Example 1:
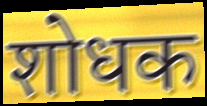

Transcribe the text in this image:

शोधक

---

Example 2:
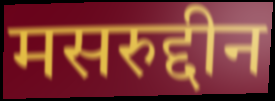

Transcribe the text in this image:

मसरुद्दीन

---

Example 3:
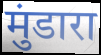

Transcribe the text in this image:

मुंडारा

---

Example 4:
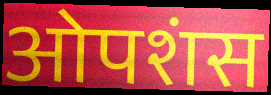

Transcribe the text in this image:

ओपशंस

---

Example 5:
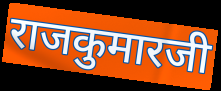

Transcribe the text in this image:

राजकुमारजी